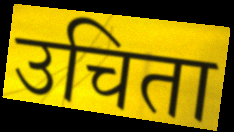
उचिता